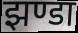
झण्डा